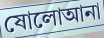
ষোলোআনা